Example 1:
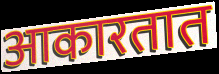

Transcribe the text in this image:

आकारतात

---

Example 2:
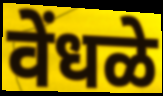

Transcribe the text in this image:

वेंधळे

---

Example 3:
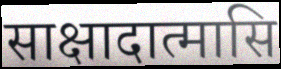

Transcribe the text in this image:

साक्षादात्मासि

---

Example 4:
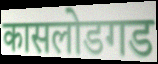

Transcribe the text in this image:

कासलोडगड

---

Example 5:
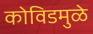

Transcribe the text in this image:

कोविडमुळे